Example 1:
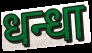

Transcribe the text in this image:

धन्धा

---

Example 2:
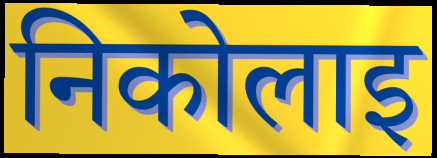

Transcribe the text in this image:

निकोलाइ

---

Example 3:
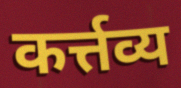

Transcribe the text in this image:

कर्त्तव्य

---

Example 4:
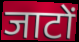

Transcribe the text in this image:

जाटों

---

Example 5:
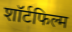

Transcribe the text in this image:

शॉर्टफिल्म